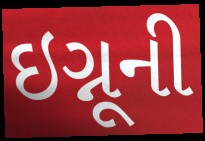
ઇગ્નૂની